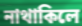
নাথাকিলে